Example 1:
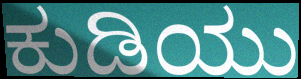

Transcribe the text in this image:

ಕುಡಿಯು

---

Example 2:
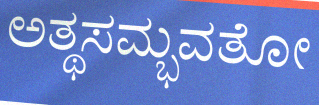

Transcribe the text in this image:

ಅತ್ಥಸಮ್ಭವತೋ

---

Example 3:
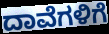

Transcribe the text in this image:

ದಾವೆಗಳಿಗೆ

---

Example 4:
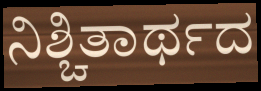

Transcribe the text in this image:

ನಿಶ್ಚಿತಾರ್ಥದ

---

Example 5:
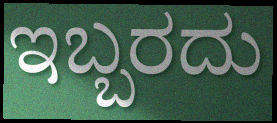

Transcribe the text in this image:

ಇಬ್ಬರದು